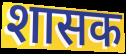
शासक